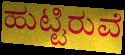
ಹುಟ್ಟಿರುವೆ